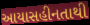
આયાસહીનતાથી